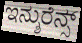
ಇನ್ಶುರೆನ್ಸ್